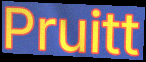
Pruitt